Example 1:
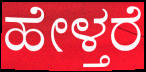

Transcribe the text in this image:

ಹೇಳ್ತರೆ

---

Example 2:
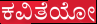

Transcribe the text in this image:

ಕವಿತೆಯೋ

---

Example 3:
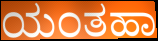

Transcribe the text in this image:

ಯಂತಹಾ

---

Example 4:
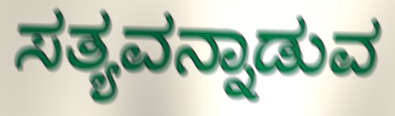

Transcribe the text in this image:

ಸತ್ಯವನ್ನಾಡುವ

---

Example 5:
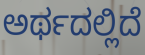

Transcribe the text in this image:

ಅರ್ಥದಲ್ಲಿದೆ